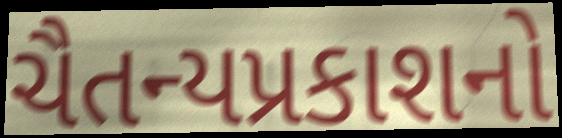
ચૈતન્યપ્રકાશનો